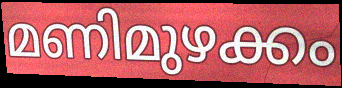
മണിമുഴക്കം